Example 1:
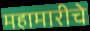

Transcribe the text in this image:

महामारीचे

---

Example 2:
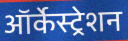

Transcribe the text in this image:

ऑर्केस्ट्रेशन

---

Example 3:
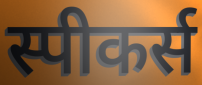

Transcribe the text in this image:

स्पीकर्स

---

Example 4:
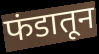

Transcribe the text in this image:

फंडातून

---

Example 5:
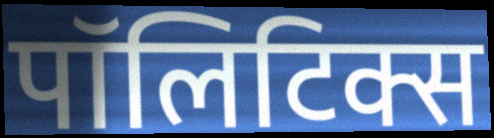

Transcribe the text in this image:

पॉलिटिक्स